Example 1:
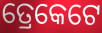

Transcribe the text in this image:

ତ୍ରେକେଟେ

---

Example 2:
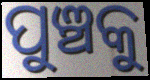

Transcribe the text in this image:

ପୁଞ୍ଚକୁ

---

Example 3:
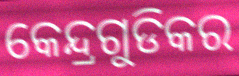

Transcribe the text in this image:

କେନ୍ଦ୍ରଗୁଡିକର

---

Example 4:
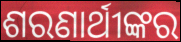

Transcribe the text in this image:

ଶରଣାର୍ଥୀଙ୍କର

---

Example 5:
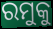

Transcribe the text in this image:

ରମୁକୁ